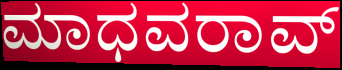
ಮಾಧವರಾವ್